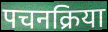
पचनक्रिया